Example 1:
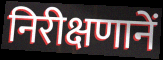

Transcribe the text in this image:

निरीक्षणानें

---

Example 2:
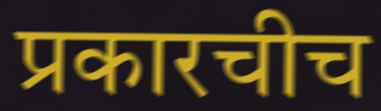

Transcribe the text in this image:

प्रकारचीच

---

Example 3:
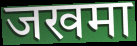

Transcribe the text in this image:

जखमा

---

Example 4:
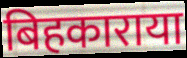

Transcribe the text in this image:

बिहकाराया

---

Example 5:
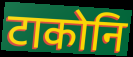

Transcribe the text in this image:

टाकोनि